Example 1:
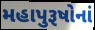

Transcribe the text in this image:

મહાપુરૂષોનાં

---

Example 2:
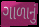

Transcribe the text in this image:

ગાળાનું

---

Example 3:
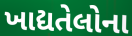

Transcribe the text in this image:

ખાદ્યતેલોના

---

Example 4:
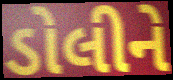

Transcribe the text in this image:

ડોલીને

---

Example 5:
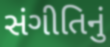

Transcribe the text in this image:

સંગીતિનું